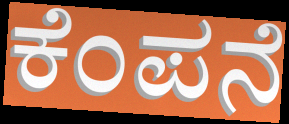
ಕೆಂಪನೆ